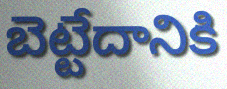
బెట్టేదానికి